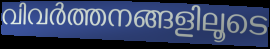
വിവർത്തനങ്ങളിലൂടെ